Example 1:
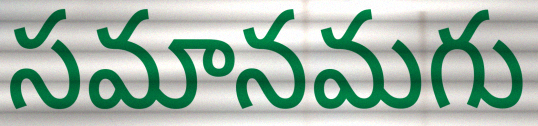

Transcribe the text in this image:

సమానమగు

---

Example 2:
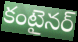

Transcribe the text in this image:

కంటైనర్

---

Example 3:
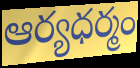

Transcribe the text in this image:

ఆర్యధర్మం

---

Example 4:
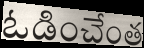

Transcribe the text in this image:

ఓడించేంత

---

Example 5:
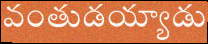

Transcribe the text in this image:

వంతుడయ్యాడు